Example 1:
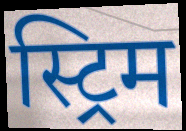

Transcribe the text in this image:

स्ट्रिम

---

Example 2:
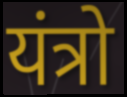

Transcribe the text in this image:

यंत्रो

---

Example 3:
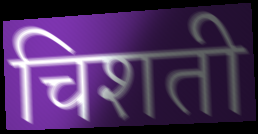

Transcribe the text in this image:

चिशती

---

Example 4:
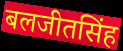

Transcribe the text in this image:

बलजीतसिंह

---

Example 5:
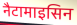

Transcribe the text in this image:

नैटामाइसिन